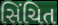
સિંચિત